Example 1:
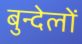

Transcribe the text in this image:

बुन्देलों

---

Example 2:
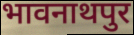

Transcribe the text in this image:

भावनाथपुर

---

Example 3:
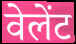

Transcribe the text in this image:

वेलेंट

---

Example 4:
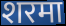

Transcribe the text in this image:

शरमा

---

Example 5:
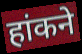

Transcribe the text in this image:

हांकने